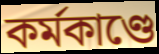
কর্মকাণ্ডে